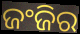
ଜଂଜିର